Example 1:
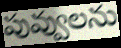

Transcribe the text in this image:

పువ్వులను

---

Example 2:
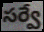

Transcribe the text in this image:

సర్వే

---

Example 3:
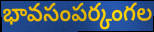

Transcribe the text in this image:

భావసంపర్కంగల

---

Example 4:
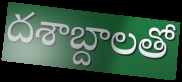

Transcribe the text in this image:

దశాబ్దాలతో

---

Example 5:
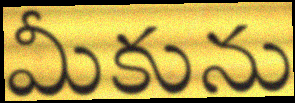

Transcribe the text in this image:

మీకును